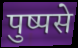
पुष्पसे